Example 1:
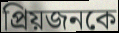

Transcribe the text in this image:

প্রিয়জনকে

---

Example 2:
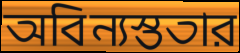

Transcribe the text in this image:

অবিন্যস্ততার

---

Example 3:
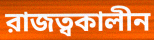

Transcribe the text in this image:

রাজত্বকালীন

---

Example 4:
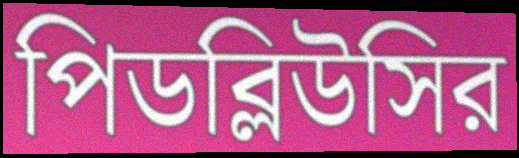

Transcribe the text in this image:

পিডব্লিউসির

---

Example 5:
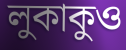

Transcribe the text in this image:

লুকাকুও